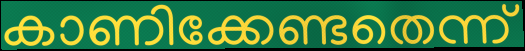
കാണിക്കേണ്ടതെന്ന്